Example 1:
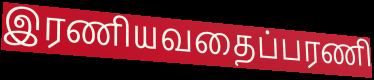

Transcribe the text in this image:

இரணியவதைப்பரணி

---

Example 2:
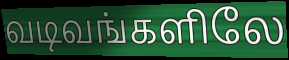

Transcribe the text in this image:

வடிவங்களிலே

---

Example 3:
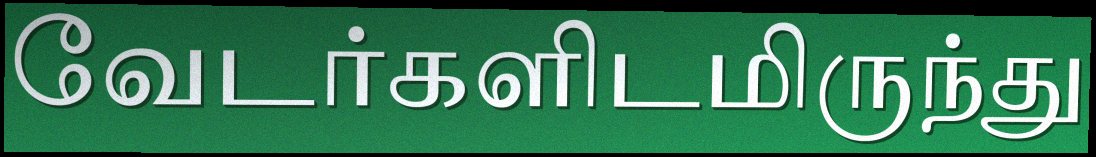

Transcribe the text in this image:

வேடர்களிடமிருந்து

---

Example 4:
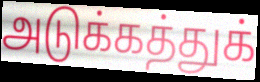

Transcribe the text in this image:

அடுக்கத்துக்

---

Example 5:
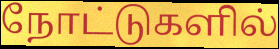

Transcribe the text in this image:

நோட்டுகளில்